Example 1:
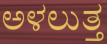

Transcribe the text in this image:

ಅಳಲುತ್ತ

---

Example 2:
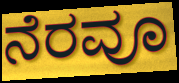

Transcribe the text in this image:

ನೆರವೂ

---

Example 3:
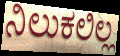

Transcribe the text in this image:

ನಿಲುಕಲಿಲ್ಲ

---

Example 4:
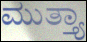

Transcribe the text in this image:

ಮುತ್ತ್ಯಾ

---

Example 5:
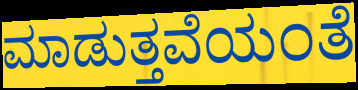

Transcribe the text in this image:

ಮಾಡುತ್ತವೆಯಂತೆ